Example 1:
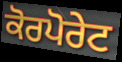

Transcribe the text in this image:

ਕੋਰਪੋਰੇਟ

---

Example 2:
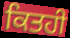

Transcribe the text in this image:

ਕਿਤਹੀ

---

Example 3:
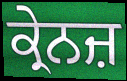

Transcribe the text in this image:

ਕ੍ਰੇਨਜ਼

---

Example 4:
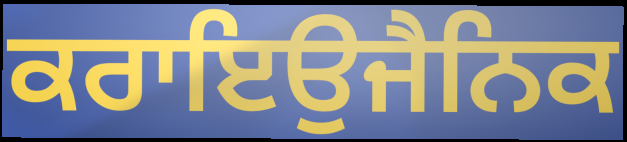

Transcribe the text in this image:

ਕਰਾਇਉਜੈਨਿਕ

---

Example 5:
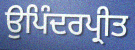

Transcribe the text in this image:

ਉਪਿੰਦਰਪ੍ਰੀਤ